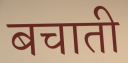
बचाती